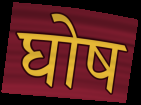
घोष